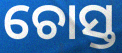
ଚୋସ୍ତ